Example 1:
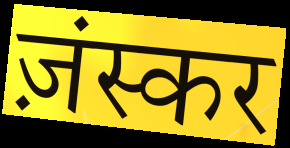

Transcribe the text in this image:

ज़ंस्कर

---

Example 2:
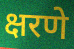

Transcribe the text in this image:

क्षरणे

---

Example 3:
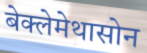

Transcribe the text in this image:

बेक्लेमेथासोन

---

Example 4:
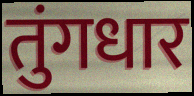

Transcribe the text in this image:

तुंगधार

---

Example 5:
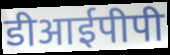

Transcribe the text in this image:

डीआईपीपी